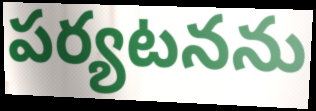
పర్యటనను